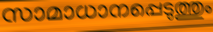
സാമാധാനപ്പെടുത്തും